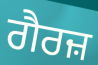
ਗੈਰਜ਼